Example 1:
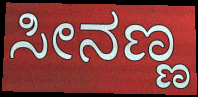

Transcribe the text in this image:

ಸೀನಣ್ಣ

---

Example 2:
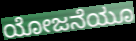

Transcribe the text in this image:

ಯೋಜನೆಯೂ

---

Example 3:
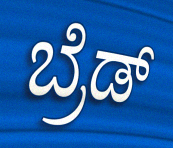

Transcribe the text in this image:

ಬ್ರೆಡ್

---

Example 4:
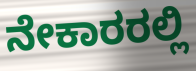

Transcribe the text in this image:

ನೇಕಾರರಲ್ಲಿ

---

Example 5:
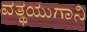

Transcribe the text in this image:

ವತ್ಥಯುಗಾನಿ